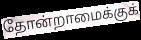
தோன்றாமைக்குக்